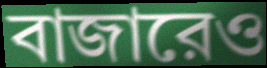
বাজারেও